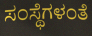
ಸಂಸ್ಥೆಗಳಂತೆ